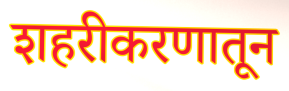
शहरीकरणातून